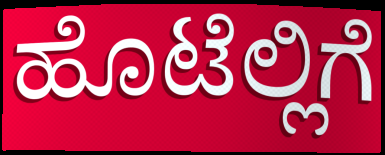
ಹೊಟೆಲ್ಲಿಗೆ